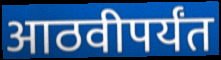
आठवीपर्यंत